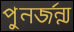
পুনৰ্জন্ম